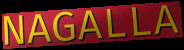
NAGALLA